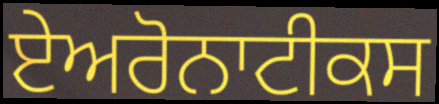
ਏਅਰੋਨਾਟੀਕਸ